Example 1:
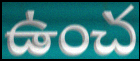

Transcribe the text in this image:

ఉంచ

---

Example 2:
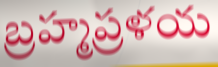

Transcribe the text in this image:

బ్రహ్మప్రళయ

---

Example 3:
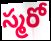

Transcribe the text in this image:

స్మరో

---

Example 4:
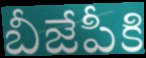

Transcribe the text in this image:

బీజేపీకి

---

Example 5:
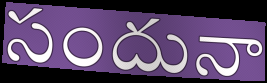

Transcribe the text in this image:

సందునా